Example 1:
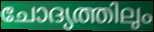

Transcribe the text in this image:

ചോദ്യത്തിലും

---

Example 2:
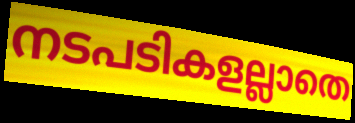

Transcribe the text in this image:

നടപടികളല്ലാതെ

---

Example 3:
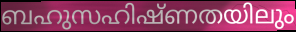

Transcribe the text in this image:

ബഹുസഹിഷ്ണതയിലും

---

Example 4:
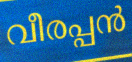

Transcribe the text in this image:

വീരപ്പൻ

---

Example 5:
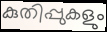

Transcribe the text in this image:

കുതിപ്പുകളും